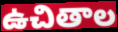
ఉచితాల